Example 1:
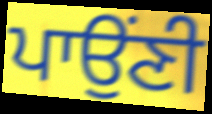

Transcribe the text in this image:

ਪਾਉਂਣੀ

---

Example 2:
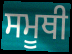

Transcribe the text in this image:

ਸਮੂਥੀ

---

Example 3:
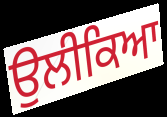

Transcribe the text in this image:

ਉਲੀਕਿਆ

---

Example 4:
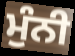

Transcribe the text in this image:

ਮੁੰਨੀ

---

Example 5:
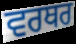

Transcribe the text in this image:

ਵਰਥਰ